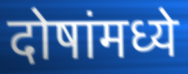
दोषांमध्ये